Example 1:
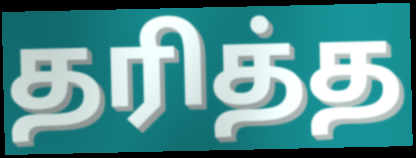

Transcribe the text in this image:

தரித்த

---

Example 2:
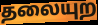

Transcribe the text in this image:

தலையுற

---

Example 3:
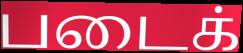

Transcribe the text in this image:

படைக்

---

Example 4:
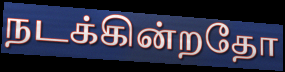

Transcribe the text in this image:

நடக்கின்றதோ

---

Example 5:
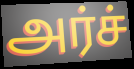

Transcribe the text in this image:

அர்ச்